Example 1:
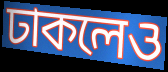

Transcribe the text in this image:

ঢাকলেও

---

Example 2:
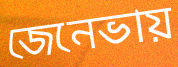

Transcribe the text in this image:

জেনেভায়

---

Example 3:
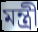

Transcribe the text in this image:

মন্ত্রী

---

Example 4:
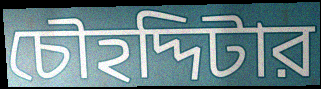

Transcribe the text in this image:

চৌহদ্দিটার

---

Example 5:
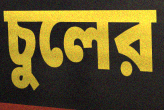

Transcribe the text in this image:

চুলের